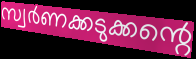
സ്വർണക്കടുക്കന്റെ